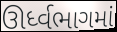
ઊર્ધ્વભાગમાં